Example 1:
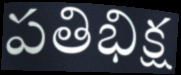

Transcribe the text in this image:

పతిభిక్ష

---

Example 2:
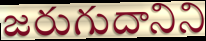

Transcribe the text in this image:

జరుగుదానిని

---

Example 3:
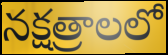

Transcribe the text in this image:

నక్షత్రాలలో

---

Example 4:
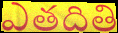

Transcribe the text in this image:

ఎతదితి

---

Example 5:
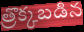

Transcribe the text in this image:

త్రొక్కబడిన